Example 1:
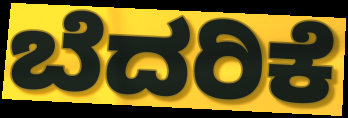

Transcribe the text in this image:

ಬೆದರಿಕೆ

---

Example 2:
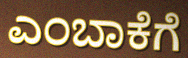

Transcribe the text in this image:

ಎಂಬಾಕೆಗೆ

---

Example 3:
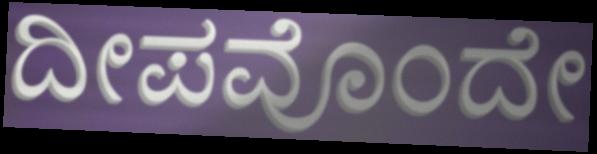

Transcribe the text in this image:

ದೀಪವೊಂದೇ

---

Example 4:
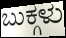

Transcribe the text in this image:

ಬುಕ್ಗಳು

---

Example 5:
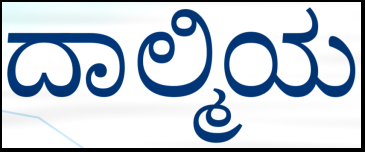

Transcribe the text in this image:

ದಾಲ್ಮಿಯ